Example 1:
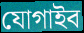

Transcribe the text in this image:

যোগাইব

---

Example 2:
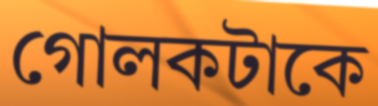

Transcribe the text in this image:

গোলকটাকে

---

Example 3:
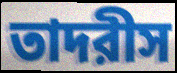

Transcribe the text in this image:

তাদরীস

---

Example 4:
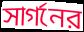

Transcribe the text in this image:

সার্গনের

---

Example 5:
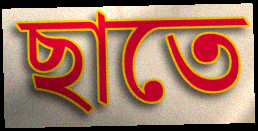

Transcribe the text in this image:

ছাতে